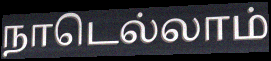
நாடெல்லாம்